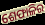
ଶେଫାଳିର